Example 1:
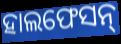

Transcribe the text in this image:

ହାଲଫେସନ୍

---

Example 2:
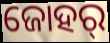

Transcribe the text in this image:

ଜୋହର୍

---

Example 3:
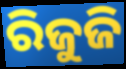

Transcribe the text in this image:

ରିଜୁଜି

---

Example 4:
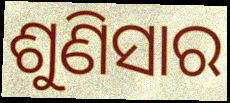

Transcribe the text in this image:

ଶୁଣିସାର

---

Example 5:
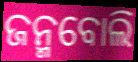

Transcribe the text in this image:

ଜନ୍ମବୋଲି